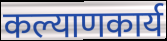
कल्याणकार्य